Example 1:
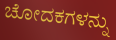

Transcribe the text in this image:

ಚೋದಕಗಳನ್ನು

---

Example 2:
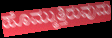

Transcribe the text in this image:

ಹೊಮ್ಮುತ್ತಿರುವುದು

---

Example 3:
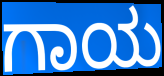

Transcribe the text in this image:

ಗಾಯ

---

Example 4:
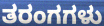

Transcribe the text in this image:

ತರಂಗಗಳು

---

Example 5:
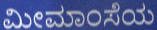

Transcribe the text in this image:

ಮೀಮಾಂಸೆಯ